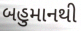
બહુમાનથી